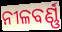
ନୀଳବର୍ଣ୍ଣ